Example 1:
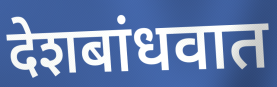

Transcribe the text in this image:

देशबांधवात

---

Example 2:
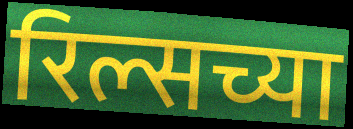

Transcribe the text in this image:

रिल्सच्या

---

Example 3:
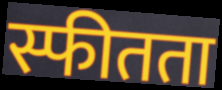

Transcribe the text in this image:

स्फीतता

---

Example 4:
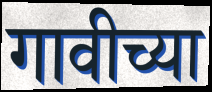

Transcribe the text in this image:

गावीच्या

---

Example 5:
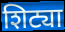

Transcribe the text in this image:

शिट्या